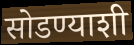
सोडण्याशी